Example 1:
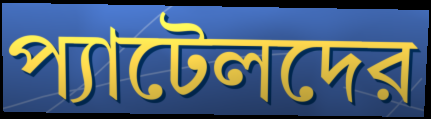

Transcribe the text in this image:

প্যাটেলদের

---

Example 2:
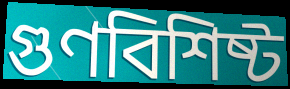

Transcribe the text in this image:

গুণবিশিষ্ট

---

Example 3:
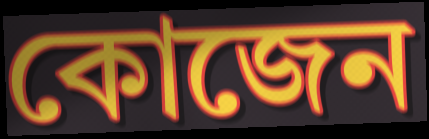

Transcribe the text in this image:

কোজেন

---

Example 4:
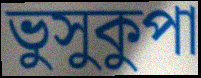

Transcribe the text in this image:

ভুসুকুপা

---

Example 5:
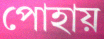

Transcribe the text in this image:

পোহায়